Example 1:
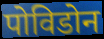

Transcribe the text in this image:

पोविडोन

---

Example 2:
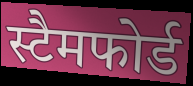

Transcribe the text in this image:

स्टैमफोर्ड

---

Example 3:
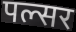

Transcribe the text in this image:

पल्सर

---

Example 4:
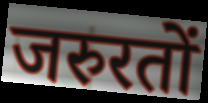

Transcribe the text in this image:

जरुरतों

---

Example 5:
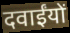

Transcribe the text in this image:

दवाईंयों